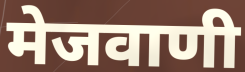
मेजवाणी